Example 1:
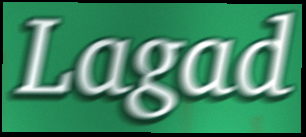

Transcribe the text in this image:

Lagad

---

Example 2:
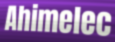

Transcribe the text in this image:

Ahimelec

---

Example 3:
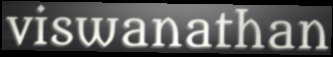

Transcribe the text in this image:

viswanathan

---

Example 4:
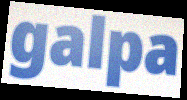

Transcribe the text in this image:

galpa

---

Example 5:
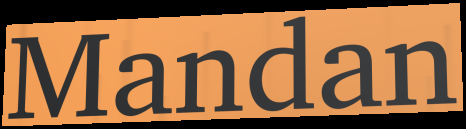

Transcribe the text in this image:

Mandan